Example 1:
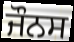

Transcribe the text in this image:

ਜੌਨਸ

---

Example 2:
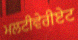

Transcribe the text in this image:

ਮਲਟੀਵੇਰੀਏਟ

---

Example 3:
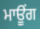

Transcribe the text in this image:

ਮਾਊਂਗ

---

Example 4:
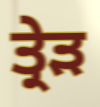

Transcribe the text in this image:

ਤ੍ਰੇੜ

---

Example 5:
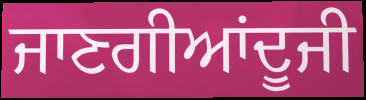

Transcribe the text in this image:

ਜਾਣਗੀਆਂਦੂਜੀ